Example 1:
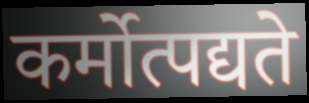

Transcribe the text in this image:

कर्मोत्पद्यते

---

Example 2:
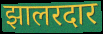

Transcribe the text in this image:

झालरदार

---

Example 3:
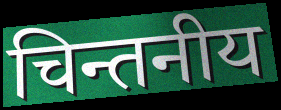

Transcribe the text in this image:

चिन्तनीय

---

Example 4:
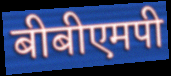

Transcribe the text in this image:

बीबीएमपी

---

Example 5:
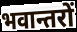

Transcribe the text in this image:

भवान्तरों